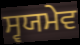
ਸ੍ਵਯਮੇਵ